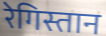
रेगिस्‍तान